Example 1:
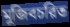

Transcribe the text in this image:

মুজিবচরিত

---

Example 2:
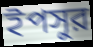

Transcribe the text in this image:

ইপসুর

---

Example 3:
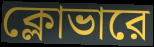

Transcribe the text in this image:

ক্লোভারে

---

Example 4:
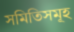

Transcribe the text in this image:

সমিতিসমূহ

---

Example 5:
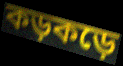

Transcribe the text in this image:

কড়কড়ে